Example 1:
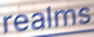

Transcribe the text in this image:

realms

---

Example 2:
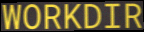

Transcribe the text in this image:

WORKDIR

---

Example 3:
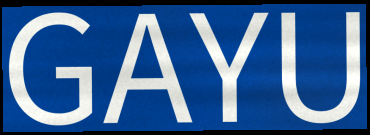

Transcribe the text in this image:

GAYU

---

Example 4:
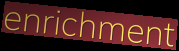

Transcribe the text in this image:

enrichment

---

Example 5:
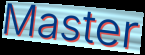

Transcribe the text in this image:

Master